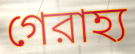
গেরাহ্য